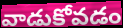
వాడుకోవడం